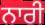
ਨਾਰੀ